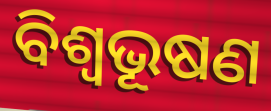
ବିଶ୍ୱଭୂଷଣ